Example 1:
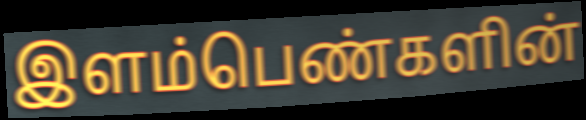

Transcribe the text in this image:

இளம்பெண்களின்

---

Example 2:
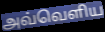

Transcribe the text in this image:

அவ்வெளிய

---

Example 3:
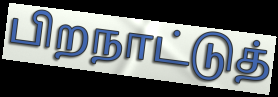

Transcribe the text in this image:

பிறநாட்டுத்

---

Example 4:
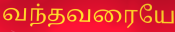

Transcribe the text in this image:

வந்தவரையே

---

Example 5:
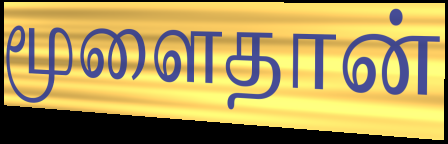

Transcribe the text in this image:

மூளைதான்